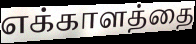
எக்காளத்தை